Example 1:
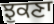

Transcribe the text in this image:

ਝੁਕਣਾ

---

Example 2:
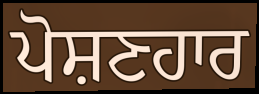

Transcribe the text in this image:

ਪੋਸ਼ਣਹਾਰ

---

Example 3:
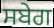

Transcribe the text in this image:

ਸਬੇਗ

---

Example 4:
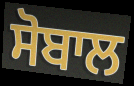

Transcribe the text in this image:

ਸੋਬਾਲ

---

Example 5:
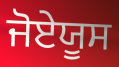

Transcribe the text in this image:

ਜੋਏਯੂਸ